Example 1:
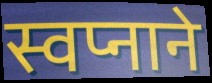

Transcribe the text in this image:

स्वप्नाने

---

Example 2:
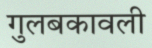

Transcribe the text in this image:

गुलबकावली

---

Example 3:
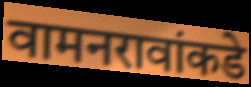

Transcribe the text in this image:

वामनरावांकडे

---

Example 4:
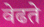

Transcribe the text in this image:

वेढते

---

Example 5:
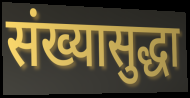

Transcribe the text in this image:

संख्यासुद्धा